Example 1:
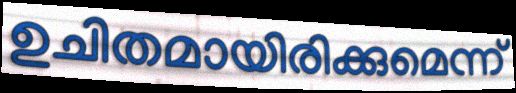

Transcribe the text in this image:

ഉചിതമായിരിക്കുമെന്ന്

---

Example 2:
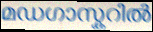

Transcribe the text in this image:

മഡഗാസ്കറിൽ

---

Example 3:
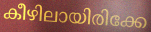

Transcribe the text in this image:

കീഴിലായിരിക്കേ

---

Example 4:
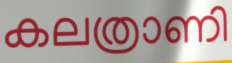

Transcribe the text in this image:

കലത്രാണി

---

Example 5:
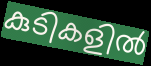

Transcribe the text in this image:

കുടികളിൽ